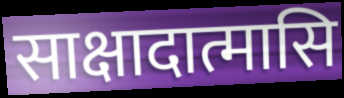
साक्षादात्मासि